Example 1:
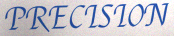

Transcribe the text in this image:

PRECISION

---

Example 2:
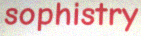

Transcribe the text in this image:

sophistry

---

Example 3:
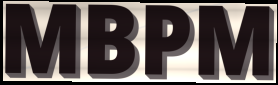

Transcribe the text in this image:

MBPM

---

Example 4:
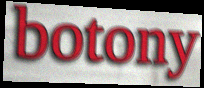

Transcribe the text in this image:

botony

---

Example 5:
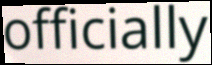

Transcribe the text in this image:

officially